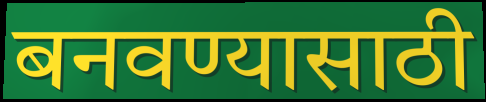
बनवण्यासाठी